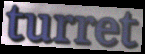
turret